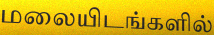
மலையிடங்களில்